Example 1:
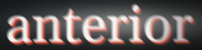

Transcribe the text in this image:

anterior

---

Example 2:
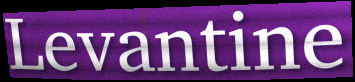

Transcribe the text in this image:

Levantine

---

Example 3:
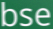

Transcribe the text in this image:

bse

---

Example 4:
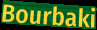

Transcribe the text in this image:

Bourbaki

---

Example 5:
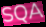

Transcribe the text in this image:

SQA